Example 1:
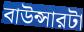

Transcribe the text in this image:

বাউন্সারটা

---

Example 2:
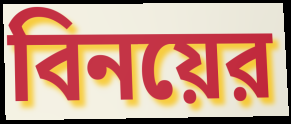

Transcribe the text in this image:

বিনয়ের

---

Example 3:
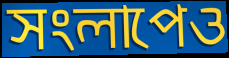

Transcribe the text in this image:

সংলাপেও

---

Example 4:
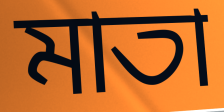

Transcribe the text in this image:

মাতা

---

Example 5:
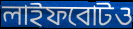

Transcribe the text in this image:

লাইফবোটও